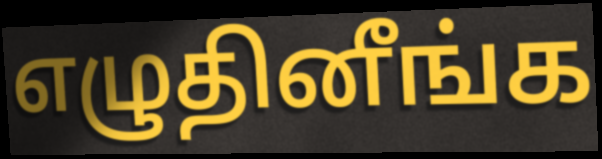
எழுதினீங்க